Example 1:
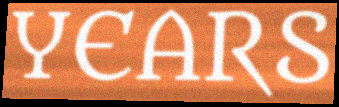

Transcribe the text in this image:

YEARS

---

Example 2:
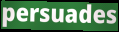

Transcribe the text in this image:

persuades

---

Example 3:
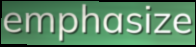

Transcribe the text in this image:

emphasize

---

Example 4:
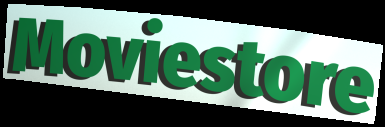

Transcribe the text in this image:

Moviestore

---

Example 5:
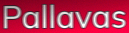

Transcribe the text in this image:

Pallavas